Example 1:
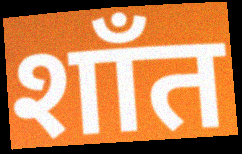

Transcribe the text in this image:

शाँत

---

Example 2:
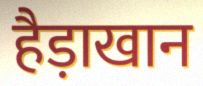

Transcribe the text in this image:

हैड़ाखान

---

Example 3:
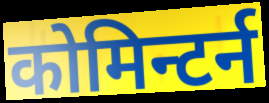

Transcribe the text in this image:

कोमिन्टर्न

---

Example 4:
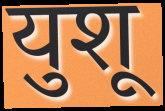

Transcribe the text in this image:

युशू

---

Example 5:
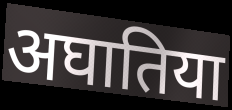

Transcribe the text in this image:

अघातिया